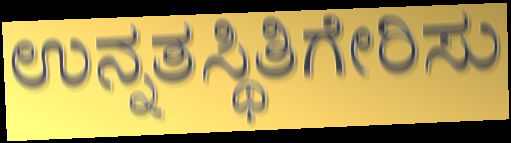
ಉನ್ನತಸ್ಥಿತಿಗೇರಿಸು